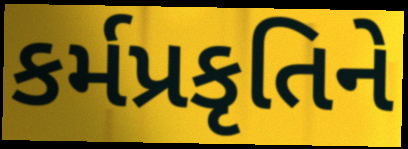
કર્મપ્રકૃતિને